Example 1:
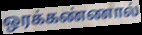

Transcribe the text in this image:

ஒரக்கண்ணால்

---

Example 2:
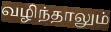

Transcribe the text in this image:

வழிந்தாலும்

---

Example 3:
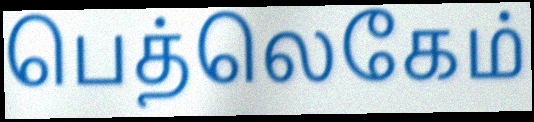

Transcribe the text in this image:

பெத்லெகேம்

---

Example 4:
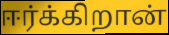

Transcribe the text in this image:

ஈர்க்கிறான்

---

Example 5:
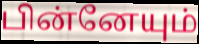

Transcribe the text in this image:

பின்னேயும்